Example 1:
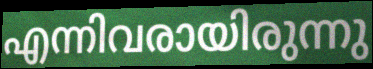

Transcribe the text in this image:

എന്നിവരായിരുന്നു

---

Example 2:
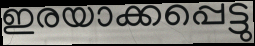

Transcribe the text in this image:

ഇരയാക്കപ്പെട്ടു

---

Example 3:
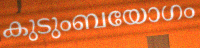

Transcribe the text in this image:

കുടുംബയോഗം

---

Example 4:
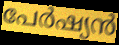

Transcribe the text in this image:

പേർഷ്യൻ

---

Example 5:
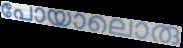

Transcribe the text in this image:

പോയാലൊരു